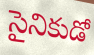
సైనికుడో